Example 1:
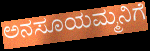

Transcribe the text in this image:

ಅನಸೂಯಮ್ಮನಿಗೆ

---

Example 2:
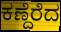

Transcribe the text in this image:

ಕಣ್ದೆರೆದ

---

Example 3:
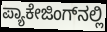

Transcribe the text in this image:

ಪ್ಯಾಕೇಜಿಂಗ್‌ನಲ್ಲಿ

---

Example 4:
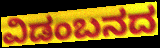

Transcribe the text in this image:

ವಿಡಂಬನದ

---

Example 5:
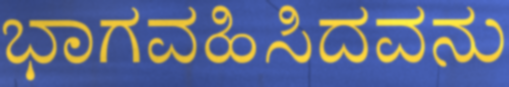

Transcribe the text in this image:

ಭಾಗವಹಿಸಿದವನು